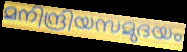
മനിന്ദ്രിയസമുദയം